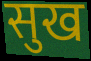
सुख